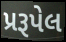
પ્રરૂપેલ